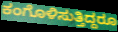
ಕಂಗೊಳಿಸುತ್ತಿದ್ದರೂ